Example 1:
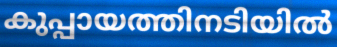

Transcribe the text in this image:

കുപ്പായത്തിനടിയിൽ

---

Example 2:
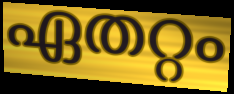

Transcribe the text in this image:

ഏതറ്റം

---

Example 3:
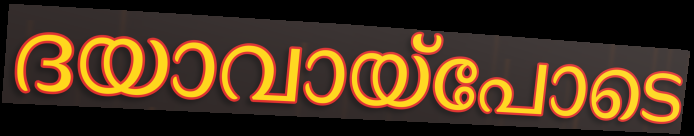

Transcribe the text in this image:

ദയാവായ്പോടെ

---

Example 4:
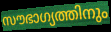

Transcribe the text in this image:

സൗഭാഗ്യത്തിനും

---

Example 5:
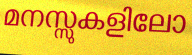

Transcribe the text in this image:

മനസ്സുകളിലോ